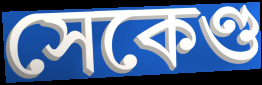
সেকেণ্ড